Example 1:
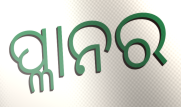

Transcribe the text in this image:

ପ୍ଳାନର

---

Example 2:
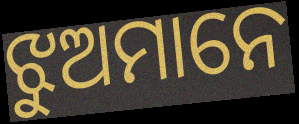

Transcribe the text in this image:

ଝୁଅମାନେ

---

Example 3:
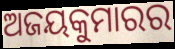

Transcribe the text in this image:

ଅଜୟକୁମାରର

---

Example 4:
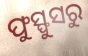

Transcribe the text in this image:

ଫୁସ୍ଫୁସରୁ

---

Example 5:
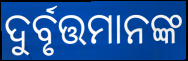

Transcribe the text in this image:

ଦୁର୍ବୃତ୍ତମାନଙ୍କ